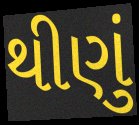
થીણું